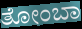
ತೋಂಬಾ